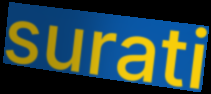
surati